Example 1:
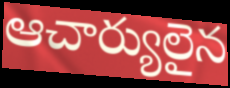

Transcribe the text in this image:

ఆచార్యులైన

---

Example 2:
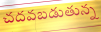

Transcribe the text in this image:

చదవబడుతున్న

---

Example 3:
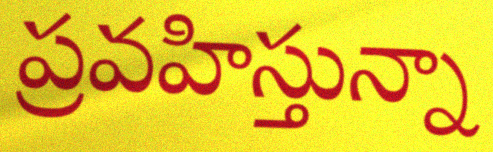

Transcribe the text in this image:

ప్రవహిస్తున్నా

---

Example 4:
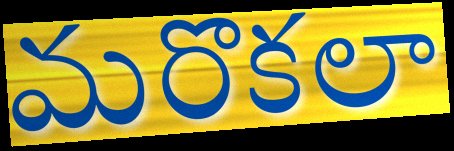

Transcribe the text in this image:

మరొకలా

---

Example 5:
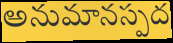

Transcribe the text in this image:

అనుమానస్పద